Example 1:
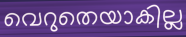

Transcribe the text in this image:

വെറുതെയാകില്ല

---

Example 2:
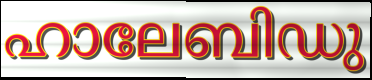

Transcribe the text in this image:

ഹാലേബിഡു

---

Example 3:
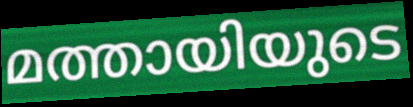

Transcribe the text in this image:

മത്തായിയുടെ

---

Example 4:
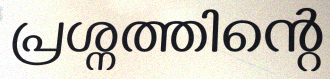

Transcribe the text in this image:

പ്രശ്നത്തിന്റെ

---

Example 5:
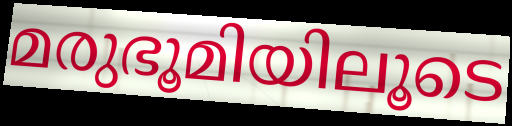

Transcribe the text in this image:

മരുഭൂമിയിലൂടെ